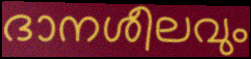
ദാനശീലവും